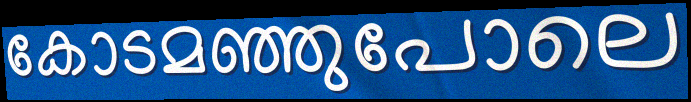
കോടമഞ്ഞുപോലെ